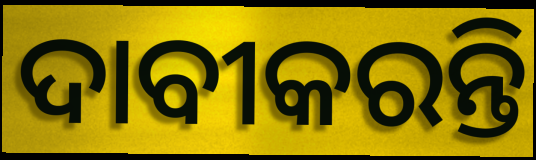
ଦାବୀକରନ୍ତି